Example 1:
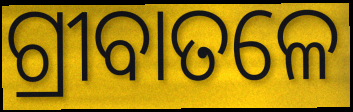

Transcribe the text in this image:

ଗ୍ରୀବାତଳେ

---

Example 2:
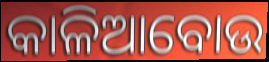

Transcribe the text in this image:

କାଳିଆବୋଉ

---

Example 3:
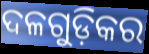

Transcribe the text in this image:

ଦଳଗୁଡ଼ିକର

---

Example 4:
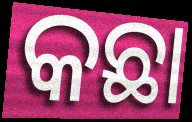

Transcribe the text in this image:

କଛା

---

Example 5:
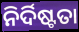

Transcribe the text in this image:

ନିର୍ଦିଷ୍ଟତା